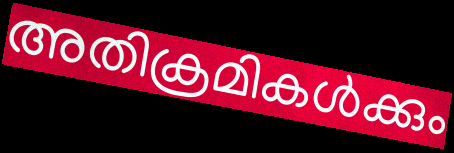
അതിക്രമികൾക്കും